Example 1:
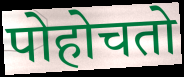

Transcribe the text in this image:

पोहोचतो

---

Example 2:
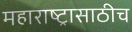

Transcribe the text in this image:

महाराष्ट्रासाठीच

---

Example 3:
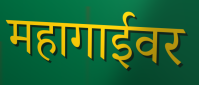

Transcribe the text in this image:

महागाईवर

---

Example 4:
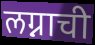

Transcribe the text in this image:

लग्नाची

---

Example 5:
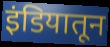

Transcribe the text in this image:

इंडियातून